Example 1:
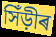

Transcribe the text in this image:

সিঁড়ীৰ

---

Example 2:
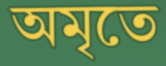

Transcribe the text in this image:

অমৃতে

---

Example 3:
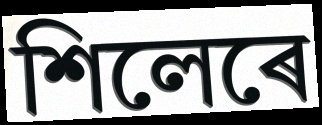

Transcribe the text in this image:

শিলেৰে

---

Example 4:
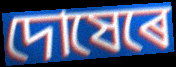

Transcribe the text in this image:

দোষেৰে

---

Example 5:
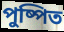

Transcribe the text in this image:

পুষ্পিত